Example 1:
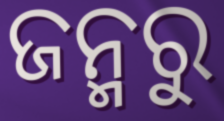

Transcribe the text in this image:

ଜନ୍ମରୁ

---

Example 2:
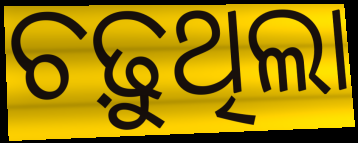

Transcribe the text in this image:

ଚଢ଼ୁଥିଲା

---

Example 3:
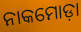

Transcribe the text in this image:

ନାକମୋଡ଼ା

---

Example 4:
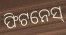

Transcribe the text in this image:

ଫିଟନେସ୍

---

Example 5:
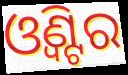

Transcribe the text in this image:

ଓ୍ଵିଣ୍ଟର